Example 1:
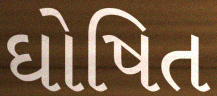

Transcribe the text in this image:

ઘોષિત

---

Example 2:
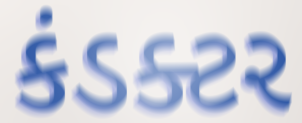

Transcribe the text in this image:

કંડક્ટર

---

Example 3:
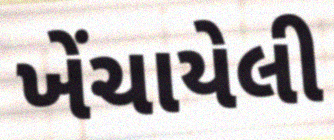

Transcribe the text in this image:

ખેંચાયેલી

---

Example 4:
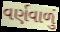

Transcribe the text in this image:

વર્ણવાળું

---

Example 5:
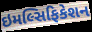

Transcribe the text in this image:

ઇમલ્સિફિકેશન